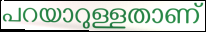
പറയാറുള്ളതാണ്